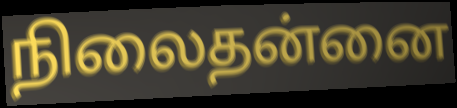
நிலைதன்னை